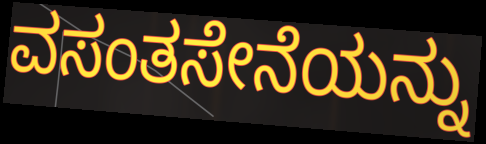
ವಸಂತಸೇನೆಯನ್ನು